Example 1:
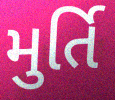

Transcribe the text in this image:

મુર્તિ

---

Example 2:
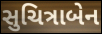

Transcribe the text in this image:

સુચિત્રાબેન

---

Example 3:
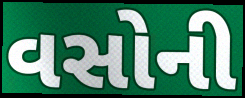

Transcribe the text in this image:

વસોની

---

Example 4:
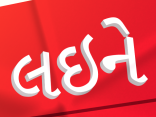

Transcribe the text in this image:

લઇને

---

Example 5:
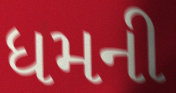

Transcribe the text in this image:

ધમની